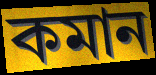
কমান